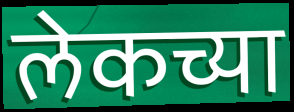
लेकच्या